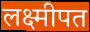
लक्ष्मीपत